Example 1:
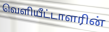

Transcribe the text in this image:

வெளியீட்டாளரின்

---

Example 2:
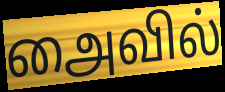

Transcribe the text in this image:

அைவில்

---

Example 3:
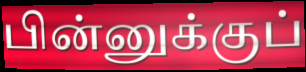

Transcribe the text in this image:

பின்னுக்குப்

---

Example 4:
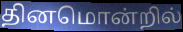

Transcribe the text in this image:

தினமொன்றில்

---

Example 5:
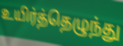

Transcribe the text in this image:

உயிர்த்தெழுந்து